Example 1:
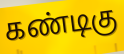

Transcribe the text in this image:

கண்டிகு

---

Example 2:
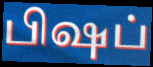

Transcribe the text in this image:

பிஷப்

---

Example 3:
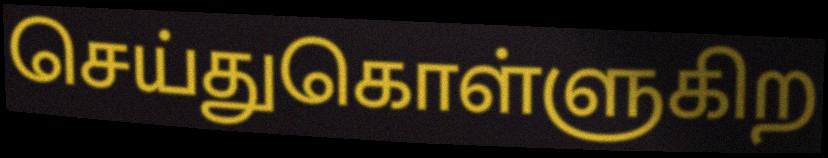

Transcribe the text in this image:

செய்துகொள்ளுகிற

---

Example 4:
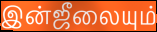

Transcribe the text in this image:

இன்ஜீலையும்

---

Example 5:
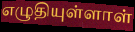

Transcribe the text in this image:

எழுதியுள்ளாள்